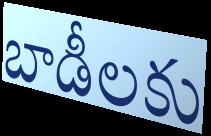
బాడీలకు